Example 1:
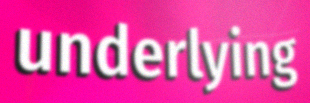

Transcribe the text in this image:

underlying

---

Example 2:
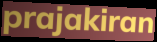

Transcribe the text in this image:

prajakiran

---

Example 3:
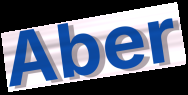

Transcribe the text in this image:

Aber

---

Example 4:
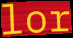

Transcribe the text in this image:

lor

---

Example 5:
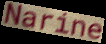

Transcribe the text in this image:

Narine